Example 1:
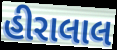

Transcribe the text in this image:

હીરાલાલ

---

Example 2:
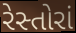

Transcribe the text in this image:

રેસ્તોરાં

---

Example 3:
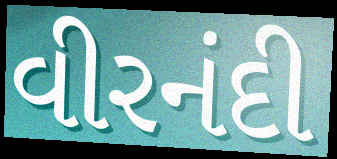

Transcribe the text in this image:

વીરનંદી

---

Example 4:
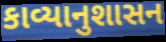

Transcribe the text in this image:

કાવ્યાનુશાસન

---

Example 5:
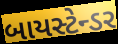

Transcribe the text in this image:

બાયસ્ટેન્ડર